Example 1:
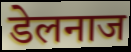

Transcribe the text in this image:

डेलनाज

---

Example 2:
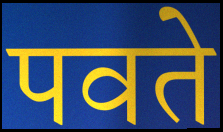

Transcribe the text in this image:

पवते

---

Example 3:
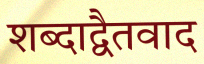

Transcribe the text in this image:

शब्दाद्वैतवाद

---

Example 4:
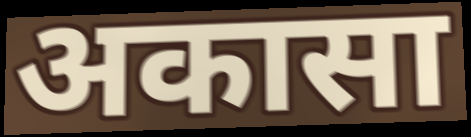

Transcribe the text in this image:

अकासा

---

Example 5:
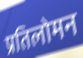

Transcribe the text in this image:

प्रतिलोमन